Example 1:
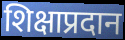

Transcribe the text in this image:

शिक्षाप्रदान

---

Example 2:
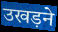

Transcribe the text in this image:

उखड़ने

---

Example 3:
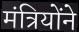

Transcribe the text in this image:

मंत्रियोंने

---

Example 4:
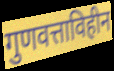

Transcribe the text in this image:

गुणवत्ताविहीन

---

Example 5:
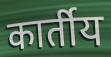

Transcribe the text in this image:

कार्तीय